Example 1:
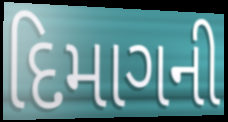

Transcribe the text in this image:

દિમાગની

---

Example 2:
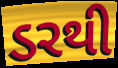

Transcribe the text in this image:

ડરથી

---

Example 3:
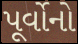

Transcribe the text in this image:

પૂર્વોનો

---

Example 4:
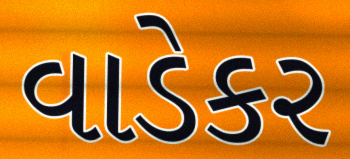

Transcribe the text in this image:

વાડેકર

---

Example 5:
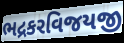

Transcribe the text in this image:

ભદ્રકરવિજયજી